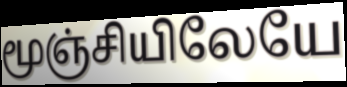
மூஞ்சியிலேயே